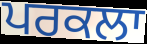
ਪਰਕਲਾ